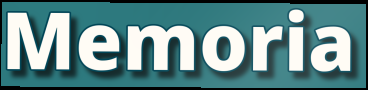
Memoria